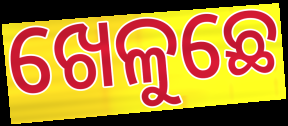
ଖେଳୁଛେ